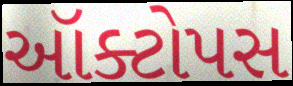
ઑક્ટોપસ